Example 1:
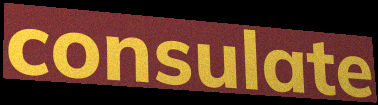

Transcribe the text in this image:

consulate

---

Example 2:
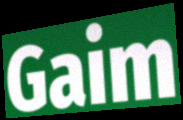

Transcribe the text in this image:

Gaim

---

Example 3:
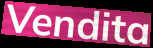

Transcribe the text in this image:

Vendita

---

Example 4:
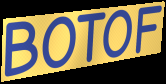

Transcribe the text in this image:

BOTOF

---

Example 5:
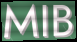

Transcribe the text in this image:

MIB